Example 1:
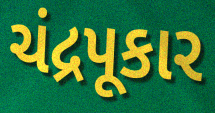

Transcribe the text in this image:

ચંદ્રપૂકાર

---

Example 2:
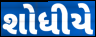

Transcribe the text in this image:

શોધીયે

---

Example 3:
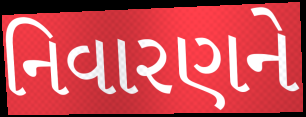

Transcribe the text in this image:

નિવારણને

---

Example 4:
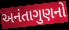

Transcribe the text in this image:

અનંતાગુણનો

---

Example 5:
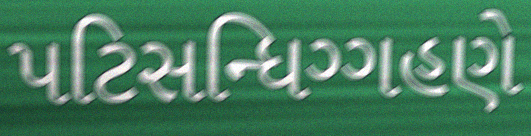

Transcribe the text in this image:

પટિસન્ધિગ્ગહણે